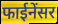
फाईनेंसर